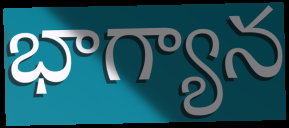
భాగ్యాన